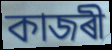
কাজৰী